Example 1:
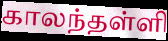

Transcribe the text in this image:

காலந்தள்ளி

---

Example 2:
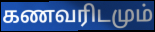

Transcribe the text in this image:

கணவரிடமும்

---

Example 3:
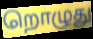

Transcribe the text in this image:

றொழுது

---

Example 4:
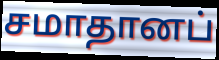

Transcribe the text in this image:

சமாதானப்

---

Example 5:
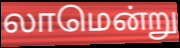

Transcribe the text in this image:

லாமென்று